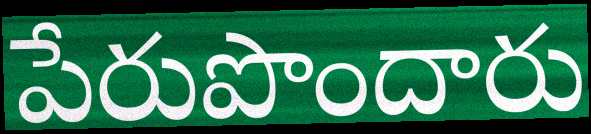
పేరుపొందారు